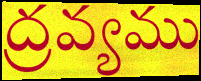
ద్రవ్యము